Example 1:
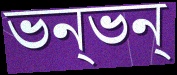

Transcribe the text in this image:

ভন্ভন্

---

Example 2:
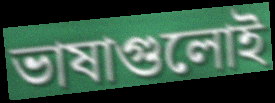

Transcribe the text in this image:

ভাষাগুলোই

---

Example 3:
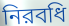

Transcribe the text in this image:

নিরবধি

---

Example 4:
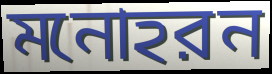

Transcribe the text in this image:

মনোহরন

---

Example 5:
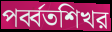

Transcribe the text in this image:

পর্ব্বতশিখর